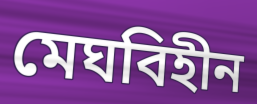
মেঘবিহীন